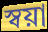
স্বয়া